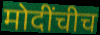
मोदींचीच